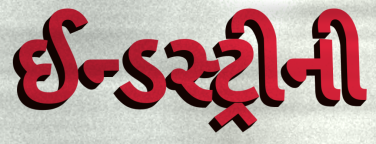
ઈન્ડસ્ટ્રીની